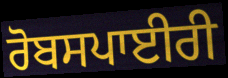
ਰੋਬਸਪਾਈਰੀ